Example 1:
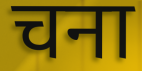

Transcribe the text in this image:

चना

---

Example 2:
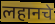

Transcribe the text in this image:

लहानचे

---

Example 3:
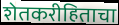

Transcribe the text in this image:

शेतकरीहिताचा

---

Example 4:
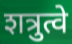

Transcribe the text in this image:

शत्रुत्वे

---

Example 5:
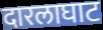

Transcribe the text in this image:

दारलाघाट